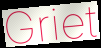
Griet